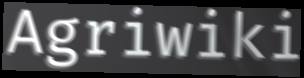
Agriwiki